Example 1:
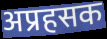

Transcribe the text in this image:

अप्रहसक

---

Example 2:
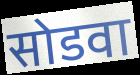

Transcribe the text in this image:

सोडवा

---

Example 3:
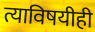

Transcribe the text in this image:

त्याविषयीही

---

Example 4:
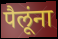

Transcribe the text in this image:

पैलूंना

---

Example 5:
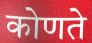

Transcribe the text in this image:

कोणते